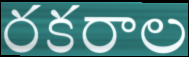
రకరాల